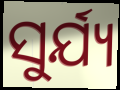
ସୁର୍ଯ୍ୟ